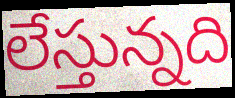
లేస్తున్నది